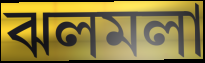
ঝলমলা